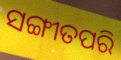
ସଙ୍ଗୀତପରି